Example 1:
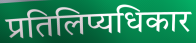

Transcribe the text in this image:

प्रतिलिप्यधिकार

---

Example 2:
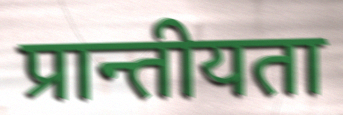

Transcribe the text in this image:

प्रान्तीयता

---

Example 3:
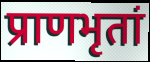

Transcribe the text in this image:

प्राणभृतां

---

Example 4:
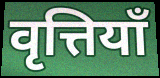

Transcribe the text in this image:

वृत्तियाँ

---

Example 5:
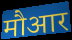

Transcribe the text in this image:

मौआर